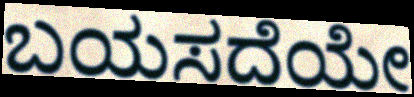
ಬಯಸದೆಯೇ